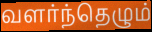
வளர்ந்தெழும்